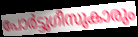
പോർട്ടുഗീസുകാരും